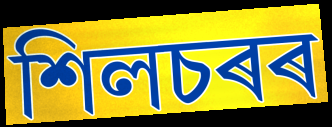
শিলচৰৰ